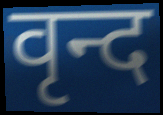
वृन्द